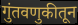
गुंतवणुकीतून